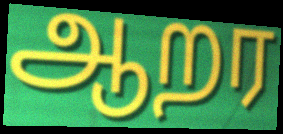
ஆறர